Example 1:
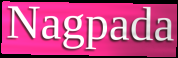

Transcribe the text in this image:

Nagpada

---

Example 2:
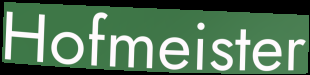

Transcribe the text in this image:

Hofmeister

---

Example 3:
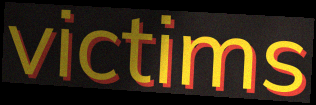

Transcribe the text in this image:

victims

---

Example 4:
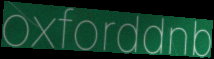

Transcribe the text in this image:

oxforddnb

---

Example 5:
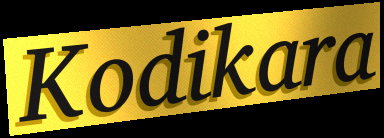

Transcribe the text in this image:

Kodikara